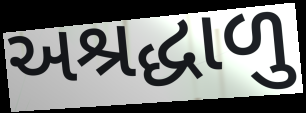
અશ્રદ્ધાળુ